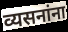
व्यसनांना